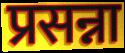
प्रसन्ना